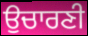
ਉਚਾਰਣੀ